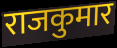
राजकुमार